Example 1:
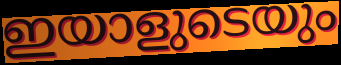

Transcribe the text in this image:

ഇയാളുടെയും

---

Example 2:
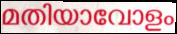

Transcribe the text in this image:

മതിയാവോളം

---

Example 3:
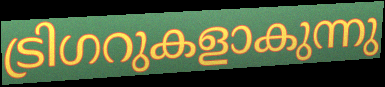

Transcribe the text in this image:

ട്രിഗറുകളാകുന്നു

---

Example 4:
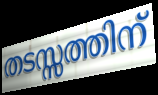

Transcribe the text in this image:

തടസ്സത്തിന്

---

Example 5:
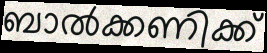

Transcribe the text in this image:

ബാൽക്കണിക്ക്